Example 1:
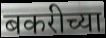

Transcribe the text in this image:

बकरीच्या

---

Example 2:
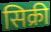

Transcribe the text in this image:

सिक्री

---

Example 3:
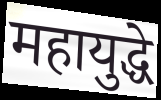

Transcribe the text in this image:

महायुद्धे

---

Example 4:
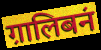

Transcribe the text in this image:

ग़ालिबनं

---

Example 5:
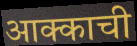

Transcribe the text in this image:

आक्काची